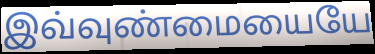
இவ்வுண்மையையே